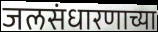
जलसंधारणाच्या